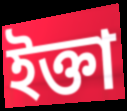
ইক্তা